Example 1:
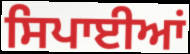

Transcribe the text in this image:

ਸਿਪਾਈਆਂ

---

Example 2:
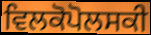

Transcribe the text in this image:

ਵਿਲਕੋਪੋਲਸਕੀ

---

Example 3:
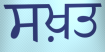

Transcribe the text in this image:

ਸਖ਼ਤ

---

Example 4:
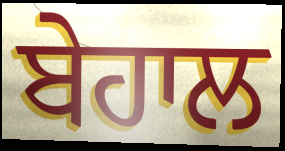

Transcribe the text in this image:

ਬੇਹਾਲ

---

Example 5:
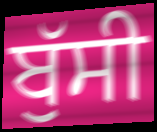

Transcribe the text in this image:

ਬੁੱਸੀ